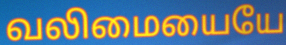
வலிமையையே